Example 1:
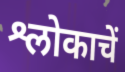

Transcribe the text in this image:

श्लोकाचें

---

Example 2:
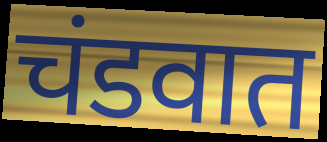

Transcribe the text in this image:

चंडवात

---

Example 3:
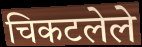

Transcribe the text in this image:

चिकटलेले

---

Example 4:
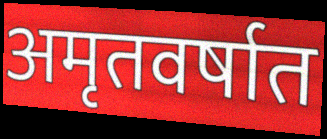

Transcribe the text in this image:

अमृतवर्षात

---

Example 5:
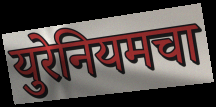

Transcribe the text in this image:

युरेनियमचा